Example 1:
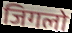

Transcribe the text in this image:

जिगलो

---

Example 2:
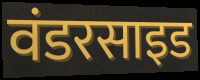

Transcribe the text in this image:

वंडरसाइड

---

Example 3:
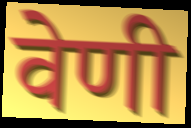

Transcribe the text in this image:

वेणी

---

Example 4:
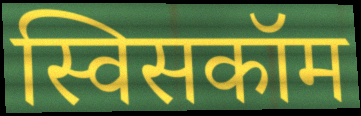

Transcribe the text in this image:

स्विसकॉम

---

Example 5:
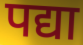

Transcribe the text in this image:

पद्या